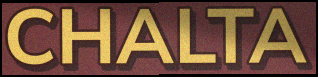
CHALTA